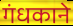
गंधकाने